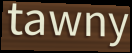
tawny